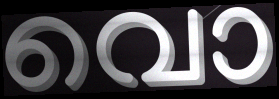
വൊ